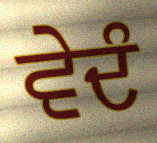
ਵੇਦੰ